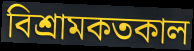
বিশ্রামকতকাল